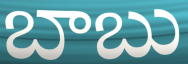
బాబు